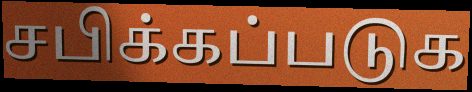
சபிக்கப்படுக